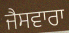
ਜੈਸਵਾਰਾ